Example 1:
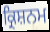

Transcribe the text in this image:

ਕ੍ਰਿਸ਼ਨਮ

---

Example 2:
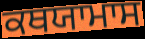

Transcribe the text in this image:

ਕਥਯਾਮਾਸ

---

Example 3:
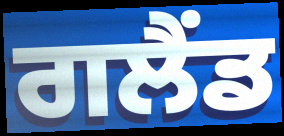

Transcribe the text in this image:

ਗਲੈਂਡ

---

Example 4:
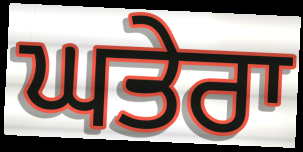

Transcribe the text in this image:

ਘਤੇਰਾ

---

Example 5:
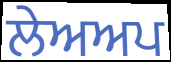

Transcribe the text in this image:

ਲੇਅਅਪ